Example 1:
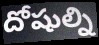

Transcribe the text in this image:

దోషుల్ని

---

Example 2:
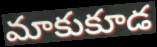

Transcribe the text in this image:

మాకుకూడ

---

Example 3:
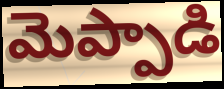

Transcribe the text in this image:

మెప్పాడి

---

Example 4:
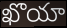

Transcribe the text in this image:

ఖొయా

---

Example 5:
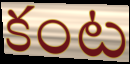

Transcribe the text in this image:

కంట